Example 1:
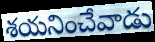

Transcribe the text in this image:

శయనించేవాడు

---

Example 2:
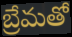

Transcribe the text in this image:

బ్రేమతో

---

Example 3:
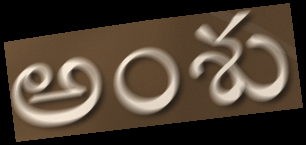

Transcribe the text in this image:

అంశు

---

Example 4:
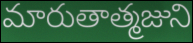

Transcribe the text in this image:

మారుతాత్మజుని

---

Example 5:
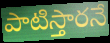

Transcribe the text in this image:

పాటిస్తారనే